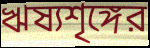
ঋষ্যশৃঙ্গের